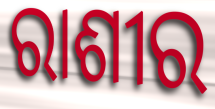
ରାଶୀର